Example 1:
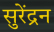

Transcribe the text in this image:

सुरेंद्रन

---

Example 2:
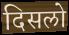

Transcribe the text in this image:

दिसलो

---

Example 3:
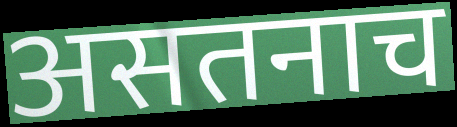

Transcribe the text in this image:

असतनाच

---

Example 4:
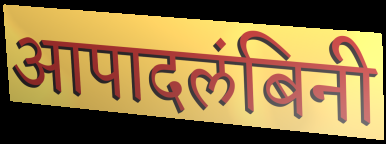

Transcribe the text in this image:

आपादलंबिनी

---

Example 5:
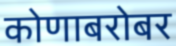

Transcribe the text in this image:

कोणाबरोबर